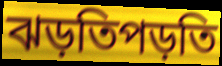
ঝড়তিপড়তি